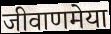
जीवाणमेया